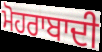
ਮੋਹਰਾਬਾਦੀ